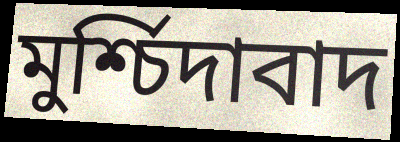
মুৰ্শ্চিদাবাদ